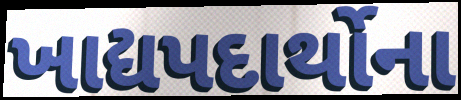
ખાદ્યપદાર્થોના